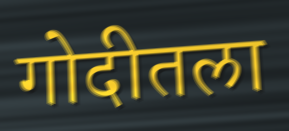
गोदीतला